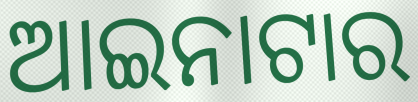
ଆଇନାଟାର